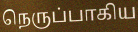
நெருப்பாகிய